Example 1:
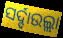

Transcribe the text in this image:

ସର୍ଦ୍ଦାଉଲ୍ଲା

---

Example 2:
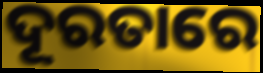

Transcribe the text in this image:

ଦୂରତାରେ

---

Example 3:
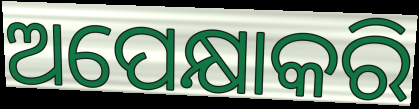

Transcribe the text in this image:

ଅପେକ୍ଷାକରି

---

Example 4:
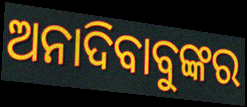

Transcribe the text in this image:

ଅନାଦିବାବୁଙ୍କର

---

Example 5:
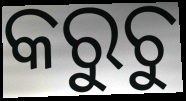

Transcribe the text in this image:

କରୁଚୁ